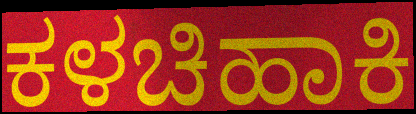
ಕಳಚಿಹಾಕಿ